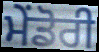
ਮੇਂਡੋਰੀ